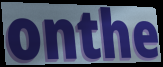
onthe